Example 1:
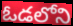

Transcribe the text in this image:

ఓడలోని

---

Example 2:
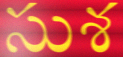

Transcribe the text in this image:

సుశ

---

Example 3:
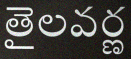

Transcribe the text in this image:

తైలవర్ణ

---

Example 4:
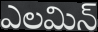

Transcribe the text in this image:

ఎలమిన్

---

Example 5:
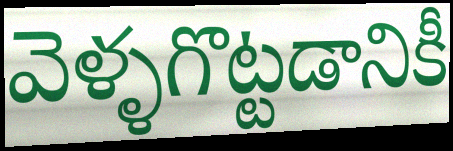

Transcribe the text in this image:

వెళ్ళగొట్టడానికీ